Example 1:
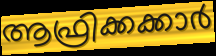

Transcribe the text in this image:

ആഫ്രിക്കക്കാർ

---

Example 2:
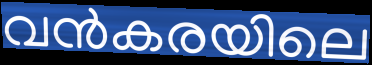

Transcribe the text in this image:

വൻകരയിലെ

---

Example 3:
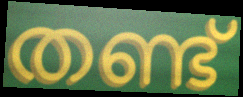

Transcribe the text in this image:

തണ്ട്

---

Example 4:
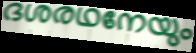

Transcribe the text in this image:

ദശരഥനേയും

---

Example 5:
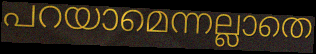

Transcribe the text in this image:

പറയാമെന്നല്ലാതെ